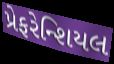
પ્રેફરેન્શિયલ